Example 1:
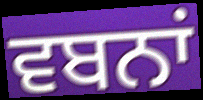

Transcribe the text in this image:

ਵਬਨਾਂ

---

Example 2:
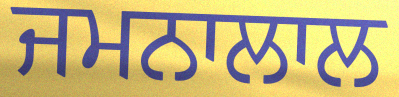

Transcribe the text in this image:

ਜਮਨਾਲਾਲ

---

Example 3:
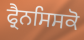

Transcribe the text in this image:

ਫ੍ਰੈਨਸਿਸਕੋ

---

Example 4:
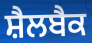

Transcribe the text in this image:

ਸ਼ੈਲਬੈਕ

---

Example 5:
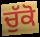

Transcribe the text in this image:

ਚੁੱਕੋ